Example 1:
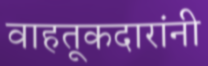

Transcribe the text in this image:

वाहतूकदारांनी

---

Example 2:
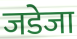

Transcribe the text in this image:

जडेजा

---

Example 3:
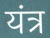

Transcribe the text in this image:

यंत्र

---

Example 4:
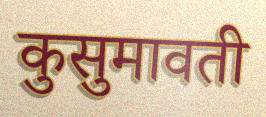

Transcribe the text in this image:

कुसुमावती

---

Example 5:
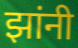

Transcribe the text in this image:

झांनी